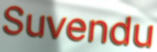
Suvendu